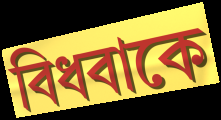
বিধবাকে